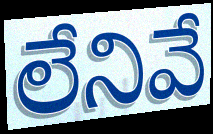
లేనివే